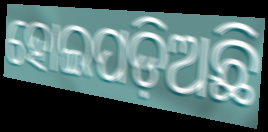
ହୋଇପଡ଼ିଅଛି